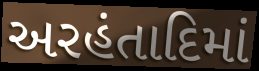
અરહંતાદિમાં